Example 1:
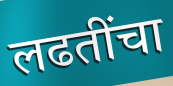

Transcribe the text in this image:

लढतींचा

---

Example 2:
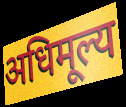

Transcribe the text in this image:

अधिमूल्य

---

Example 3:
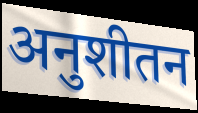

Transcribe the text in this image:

अनुशीतन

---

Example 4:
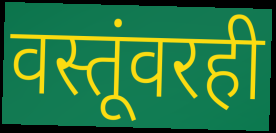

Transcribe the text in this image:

वस्तूंवरही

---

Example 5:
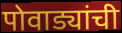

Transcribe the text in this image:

पोवाड्यांची